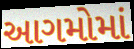
આગમોમાં